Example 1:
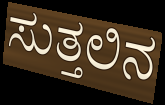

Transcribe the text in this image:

ಸುತ್ತಲಿನ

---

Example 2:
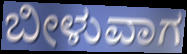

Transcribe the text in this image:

ಬೀಳುವಾಗ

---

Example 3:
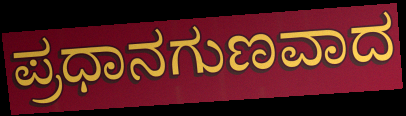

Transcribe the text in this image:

ಪ್ರಧಾನಗುಣವಾದ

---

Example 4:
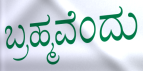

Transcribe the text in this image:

ಬ್ರಹ್ಮವೆಂದು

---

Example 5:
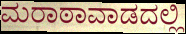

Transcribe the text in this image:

ಮರಾಠಾವಾಡದಲ್ಲಿ